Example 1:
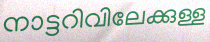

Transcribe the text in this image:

നാട്ടറിവിലേക്കുള്ള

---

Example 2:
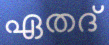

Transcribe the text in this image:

ഏതദ്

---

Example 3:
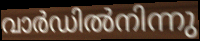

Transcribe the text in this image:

വാർഡിൽനിന്നു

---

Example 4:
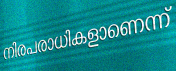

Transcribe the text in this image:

നിരപരാധികളാണെന്ന്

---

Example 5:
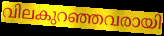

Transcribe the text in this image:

വിലകുറഞ്ഞവരായി